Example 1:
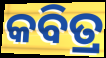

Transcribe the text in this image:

କବିତ୍ର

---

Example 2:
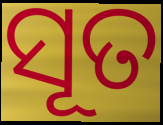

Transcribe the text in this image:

ସୂତ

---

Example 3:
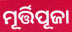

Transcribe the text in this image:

ମୂର୍ତ୍ତିପୂଜା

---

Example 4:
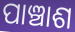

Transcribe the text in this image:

ପାଞ୍ଚାଶ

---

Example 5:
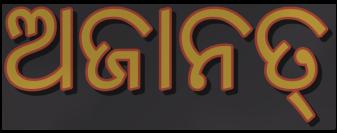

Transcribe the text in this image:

ଅଜାନତ୍